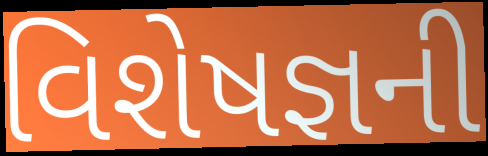
વિશેષજ્ઞની